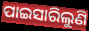
ପାଇସାରିଲୁଣି